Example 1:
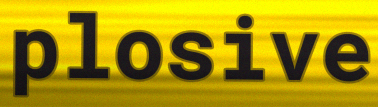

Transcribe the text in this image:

plosive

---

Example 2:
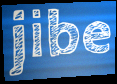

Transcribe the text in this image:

jibe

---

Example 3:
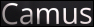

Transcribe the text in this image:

Camus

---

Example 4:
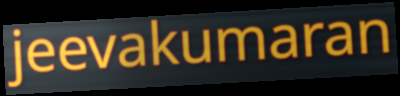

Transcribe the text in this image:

jeevakumaran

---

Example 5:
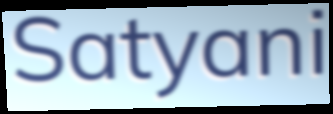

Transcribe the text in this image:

Satyani